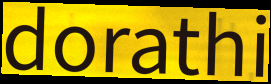
dorathi